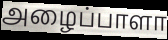
அழைப்பாளா